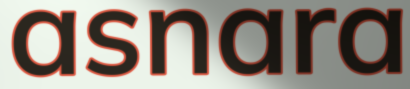
asnara